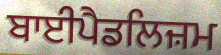
ਬਾਈਪੈਡਲਿਜ਼ਮ